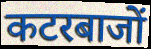
कटरबाजों